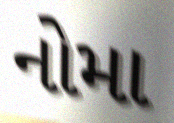
નોમા